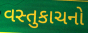
વસ્તુકાચનો